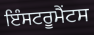
ਇੰਸਟਰੂਮੈਂਟਸ